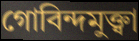
গোবিন্দমুক্ত্বা